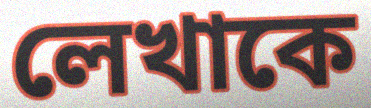
লেখাকে